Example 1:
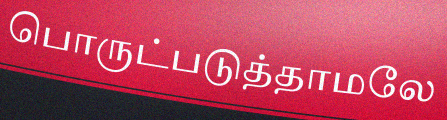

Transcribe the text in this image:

பொருட்படுத்தாமலே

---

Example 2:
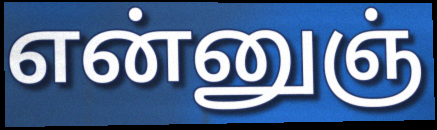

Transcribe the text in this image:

என்னுஞ்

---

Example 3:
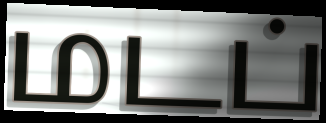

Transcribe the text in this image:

மடப்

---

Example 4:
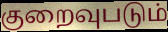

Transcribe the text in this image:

குறைவுபடும்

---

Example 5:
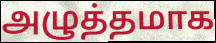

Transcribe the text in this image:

அழுத்தமாக